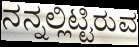
ನನ್ನಲ್ಲಿಟ್ಟಿರುವ